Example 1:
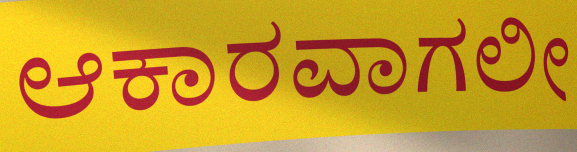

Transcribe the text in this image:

ಆಕಾರವಾಗಲೀ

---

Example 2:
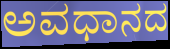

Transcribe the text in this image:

ಅವಧಾನದ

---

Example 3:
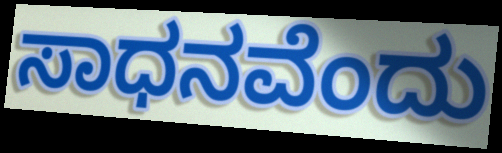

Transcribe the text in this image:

ಸಾಧನವೆಂದು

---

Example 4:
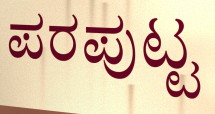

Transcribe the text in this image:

ಪರಪುಟ್ಟ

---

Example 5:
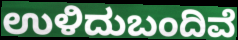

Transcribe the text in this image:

ಉಳಿದುಬಂದಿವೆ